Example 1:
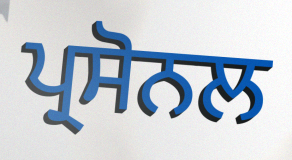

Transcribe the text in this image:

ਪ੍ਰਸੋਨਲ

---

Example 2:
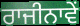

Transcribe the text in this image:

ਰਾਜੀਨਾਵੇਂ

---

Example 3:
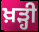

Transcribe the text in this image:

ਖ਼ੜ੍ਹੀ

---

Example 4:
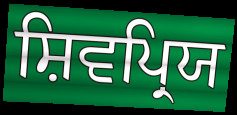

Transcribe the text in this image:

ਸ਼ਿਵਪ੍ਰਿਯ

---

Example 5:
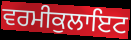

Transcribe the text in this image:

ਵਰਮੀਕੁਲਾਇਟ